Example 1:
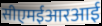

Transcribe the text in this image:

सीएमईआरआई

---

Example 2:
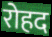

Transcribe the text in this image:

रोहद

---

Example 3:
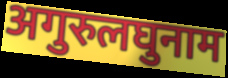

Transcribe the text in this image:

अगुरुलघुनाम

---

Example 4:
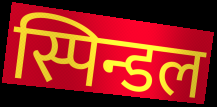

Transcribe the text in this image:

स्पिन्डल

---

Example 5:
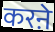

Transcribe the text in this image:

करऩे